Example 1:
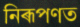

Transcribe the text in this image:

নিৰূপণত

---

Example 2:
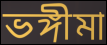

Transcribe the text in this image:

ভঙ্গীমা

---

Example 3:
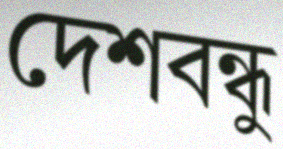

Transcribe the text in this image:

দেশবন্ধু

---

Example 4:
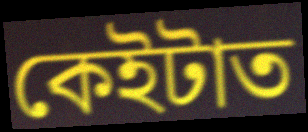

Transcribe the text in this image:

কেইটাত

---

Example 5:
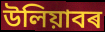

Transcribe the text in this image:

উলিয়াবৰ